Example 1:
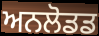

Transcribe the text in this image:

ਅਨਲੋਡਡ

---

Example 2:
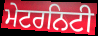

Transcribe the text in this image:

ਮੇਟਰਨਿਟੀ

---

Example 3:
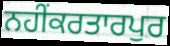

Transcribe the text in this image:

ਨਹੀਂਕਰਤਾਰਪੁਰ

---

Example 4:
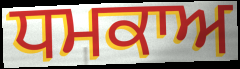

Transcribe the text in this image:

ਧਮਕਾਅ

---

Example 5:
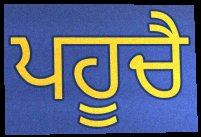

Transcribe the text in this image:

ਪਹੂਚੈ